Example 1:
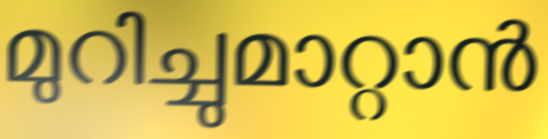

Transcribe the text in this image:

മുറിച്ചുമാറ്റാൻ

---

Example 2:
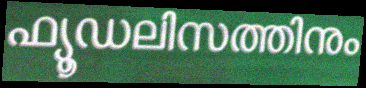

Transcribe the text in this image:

ഫ്യൂഡലിസത്തിനും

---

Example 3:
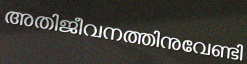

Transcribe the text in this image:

അതിജീവനത്തിനുവേണ്ടി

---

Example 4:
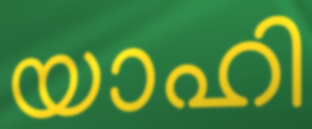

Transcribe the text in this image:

യാഹി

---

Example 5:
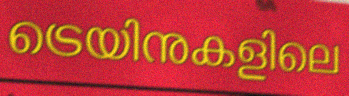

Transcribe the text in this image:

ട്രെയിനുകളിലെ